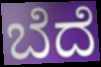
ಬೆದೆ